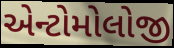
એન્ટોમોલોજી